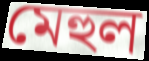
মেহুল